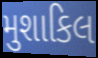
મુશાકિલ